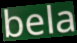
bela